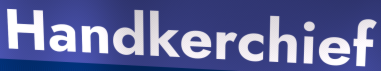
Handkerchief